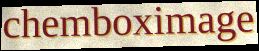
chemboximage